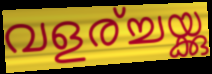
വളര്ച്ചയ്ക്കു